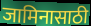
जामिनासाठी